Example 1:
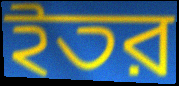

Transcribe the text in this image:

ইতর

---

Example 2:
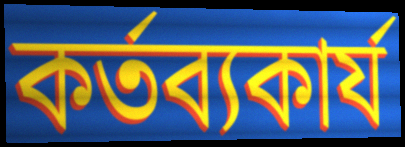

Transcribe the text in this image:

কর্তব্যকার্য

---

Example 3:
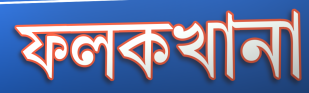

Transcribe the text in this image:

ফলকখানা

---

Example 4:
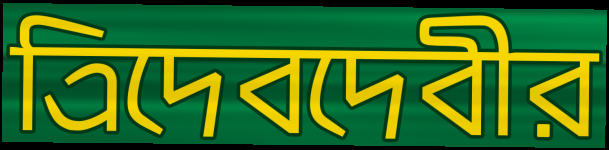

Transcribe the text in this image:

ত্রিদেবদেবীর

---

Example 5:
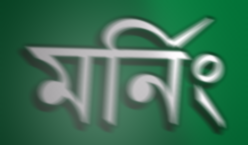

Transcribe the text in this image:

মর্নিং